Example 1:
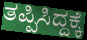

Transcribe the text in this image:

ತಪ್ಪಿಸಿದ್ದಕ್ಕೆ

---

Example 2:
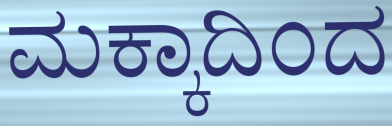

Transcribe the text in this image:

ಮಕ್ಕಾದಿಂದ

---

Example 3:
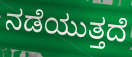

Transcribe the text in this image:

ನಡೆಯುತ್ತದೆ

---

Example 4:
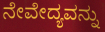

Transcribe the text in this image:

ನೇವೇದ್ಯವನ್ನು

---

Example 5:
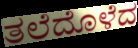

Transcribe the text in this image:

ತಲೆದೊಳೆದ